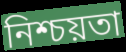
নিশ্চয়তা